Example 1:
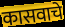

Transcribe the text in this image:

कासवाचे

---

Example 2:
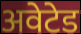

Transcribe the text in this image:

अवेटेड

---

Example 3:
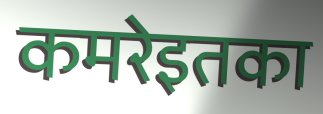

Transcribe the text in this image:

कमरेइतका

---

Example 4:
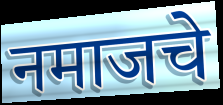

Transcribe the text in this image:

नमाजचे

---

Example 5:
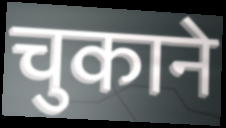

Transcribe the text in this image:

चुकाने